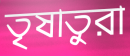
তৃষাতুরা